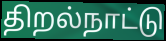
திறல்நாட்டு